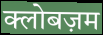
क्लोबज़म